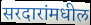
सरदारांमधील